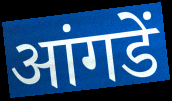
आंगडें